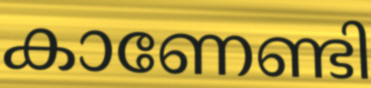
കാണേണ്ടി